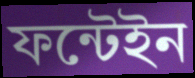
ফন্টেইন